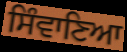
ਸਿੰਵਾਣਿਆ